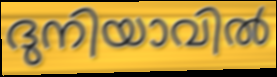
ദുനിയാവിൽ